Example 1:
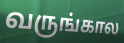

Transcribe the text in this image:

வருங்கால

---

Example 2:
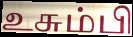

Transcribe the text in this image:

உசும்பி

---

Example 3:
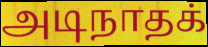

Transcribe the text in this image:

அடிநாதக்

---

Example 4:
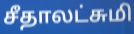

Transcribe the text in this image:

சீதாலட்சுமி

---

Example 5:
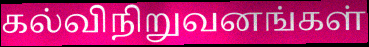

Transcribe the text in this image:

கல்விநிறுவனங்கள்